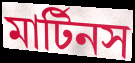
মার্টিনস